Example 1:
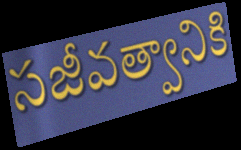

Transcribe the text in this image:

సజీవత్వానికి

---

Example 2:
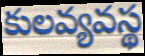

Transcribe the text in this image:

కులవ్యవస్థ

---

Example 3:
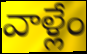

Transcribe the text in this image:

వాళ్లేం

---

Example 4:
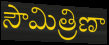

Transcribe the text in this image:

సౌమిత్రిణా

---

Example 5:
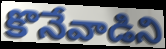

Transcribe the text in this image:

కొనేవాడిని